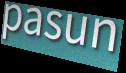
pasun